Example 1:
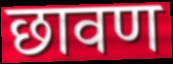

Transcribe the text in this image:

छावण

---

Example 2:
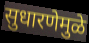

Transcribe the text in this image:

सुधारणेमुळे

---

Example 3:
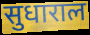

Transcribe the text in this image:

सुधाराल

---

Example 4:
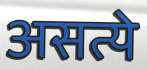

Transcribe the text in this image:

असत्ये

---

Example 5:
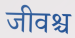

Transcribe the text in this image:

जीवश्च